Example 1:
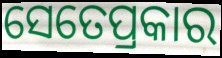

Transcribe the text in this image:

ସେତେପ୍ରକାର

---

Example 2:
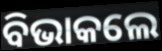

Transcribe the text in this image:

ବିଭାକଲେ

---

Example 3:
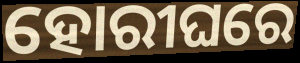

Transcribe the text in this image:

ହୋରୀଘରେ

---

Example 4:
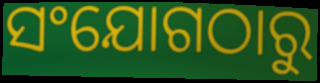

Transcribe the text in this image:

ସଂଯୋଗଠାରୁ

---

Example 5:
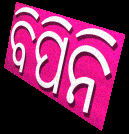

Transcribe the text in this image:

ବିପିନି